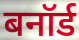
बनॉर्ड